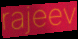
rajeev